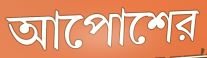
আপোশের